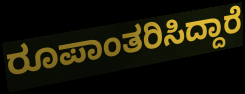
ರೂಪಾಂತರಿಸಿದ್ದಾರೆ